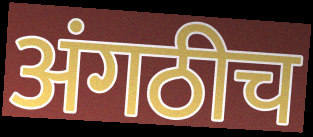
अंगठीच